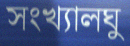
সংখ্যালঘু